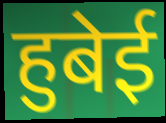
हुबेई